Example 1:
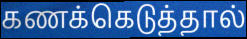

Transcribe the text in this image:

கணக்கெடுத்தால்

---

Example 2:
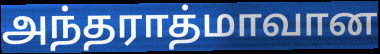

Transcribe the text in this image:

அந்தராத்மாவான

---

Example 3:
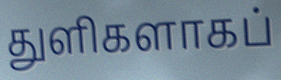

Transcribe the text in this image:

துளிகளாகப்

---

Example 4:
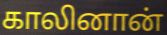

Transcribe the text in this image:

காலினான்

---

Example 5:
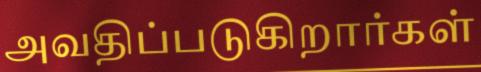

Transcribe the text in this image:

அவதிப்படுகிறார்கள்